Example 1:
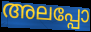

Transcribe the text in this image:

അലപ്പോ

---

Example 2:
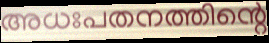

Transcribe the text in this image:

അധഃപതനത്തിന്റെ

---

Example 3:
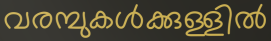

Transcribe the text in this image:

വരമ്പുകൾക്കുള്ളിൽ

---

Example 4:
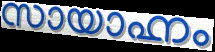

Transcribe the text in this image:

സായാഹ്നം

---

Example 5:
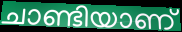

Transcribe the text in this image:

ചാണ്ടിയാണ്